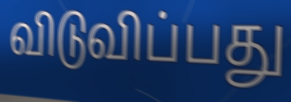
விடுவிப்பது